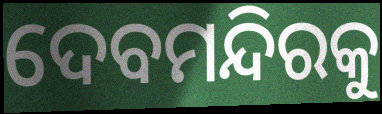
ଦେବମନ୍ଦିରକୁ